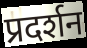
प्रदर्शन